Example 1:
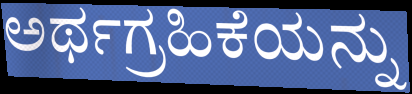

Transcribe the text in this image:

ಅರ್ಥಗ್ರಹಿಕೆಯನ್ನು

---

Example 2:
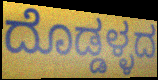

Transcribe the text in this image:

ದೊಡ್ಡಳ್ಳದ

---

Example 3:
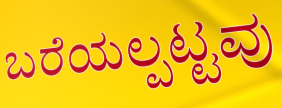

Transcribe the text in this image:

ಬರೆಯಲ್ಪಟ್ಟವು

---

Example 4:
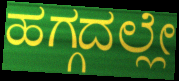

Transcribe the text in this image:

ಹಗ್ಗದಲ್ಲೇ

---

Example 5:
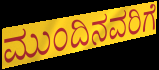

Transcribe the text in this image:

ಮುಂದಿನವರಿಗೆ